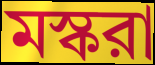
মস্করা